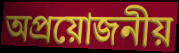
অপ্ৰয়োজনীয়